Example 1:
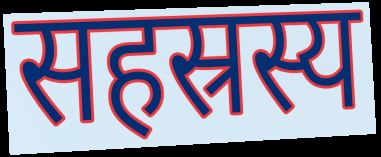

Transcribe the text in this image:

सहस्रस्य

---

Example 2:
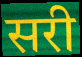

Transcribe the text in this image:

सरी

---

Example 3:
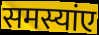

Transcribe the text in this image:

समस्यांए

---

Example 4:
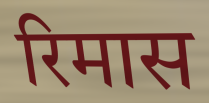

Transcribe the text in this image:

रिमास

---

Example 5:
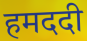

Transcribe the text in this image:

हमददी